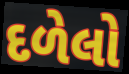
દળેલો